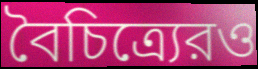
বৈচিত্র্যেরও